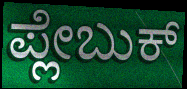
ಪ್ಲೇಬುಕ್